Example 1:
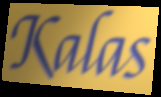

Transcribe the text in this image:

Kalas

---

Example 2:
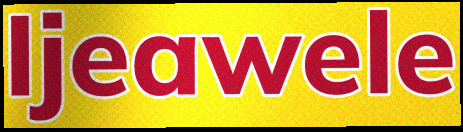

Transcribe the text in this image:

Ijeawele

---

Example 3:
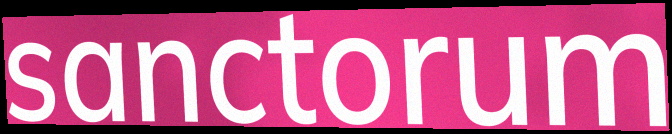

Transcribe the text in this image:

sanctorum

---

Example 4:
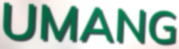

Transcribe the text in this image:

UMANG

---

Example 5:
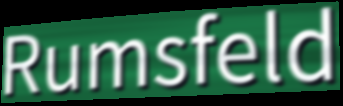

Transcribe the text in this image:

Rumsfeld